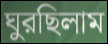
ঘুরছিলাম